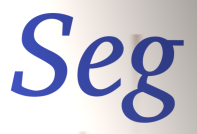
Seg